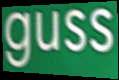
guss